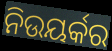
ନିଉୟର୍କର